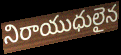
నిరాయుధులైన